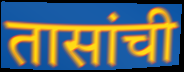
तासांची